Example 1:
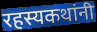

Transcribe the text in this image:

रहस्यकथांनी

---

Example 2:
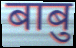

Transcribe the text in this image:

बाबु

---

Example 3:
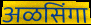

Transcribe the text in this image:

अळसिंगा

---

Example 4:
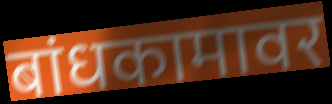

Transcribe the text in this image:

बांधकामावर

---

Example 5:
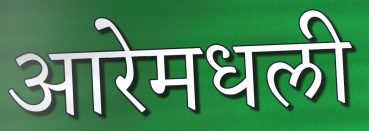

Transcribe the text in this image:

आरेमधली